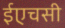
ईएचसी